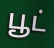
பூட்